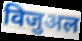
विजुअल